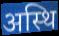
अस्थि